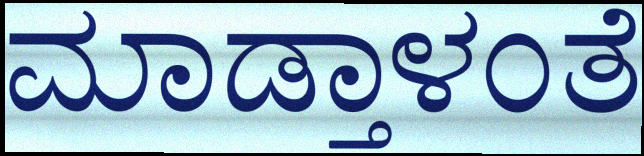
ಮಾಡ್ತಾಳಂತೆ